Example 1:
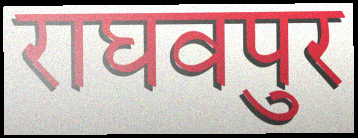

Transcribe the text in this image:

राघवपुर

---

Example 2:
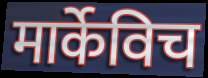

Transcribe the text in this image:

मार्केविच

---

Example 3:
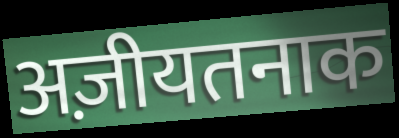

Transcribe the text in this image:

अज़ीयतनाक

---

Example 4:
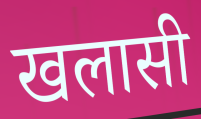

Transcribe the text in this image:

खलासी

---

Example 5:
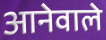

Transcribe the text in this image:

आनेवाले